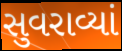
સુવરાવ્યાં